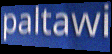
paltawi